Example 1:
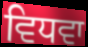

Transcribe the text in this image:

ਵਿਧਵਾ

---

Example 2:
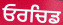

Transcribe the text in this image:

ਓਰਚਿਡ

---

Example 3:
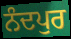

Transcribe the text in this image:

ਨੰਦਪੁਰ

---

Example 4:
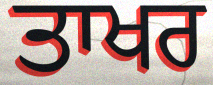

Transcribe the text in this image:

ਤਾਖਰ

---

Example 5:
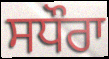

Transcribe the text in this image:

ਸਧੌਰਾ